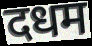
दधम